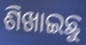
ଶିଖାଇଛୁ